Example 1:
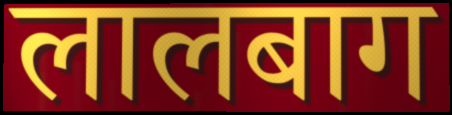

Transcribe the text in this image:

लालबाग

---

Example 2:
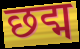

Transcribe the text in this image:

छद्म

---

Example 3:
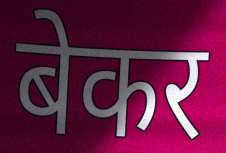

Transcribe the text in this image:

बेकर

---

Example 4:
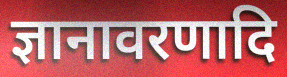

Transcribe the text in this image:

ज्ञानावरणादि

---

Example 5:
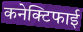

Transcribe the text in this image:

कनेक्टिफाई